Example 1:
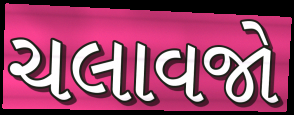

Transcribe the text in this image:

ચલાવજો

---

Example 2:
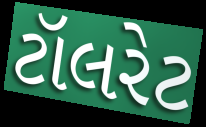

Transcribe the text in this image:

ટૉલરેટ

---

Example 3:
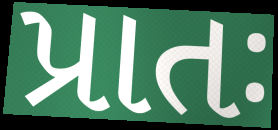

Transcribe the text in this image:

પ્રાતઃ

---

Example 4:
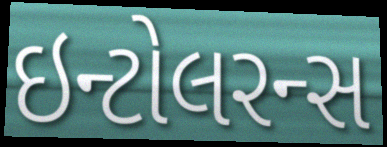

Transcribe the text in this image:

ઇન્ટોલરન્સ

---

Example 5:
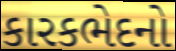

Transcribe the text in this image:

કારકભેદનો